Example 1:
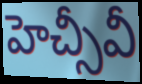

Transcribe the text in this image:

హెచ్సీవీ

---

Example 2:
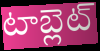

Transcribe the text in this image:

టాబ్లెట్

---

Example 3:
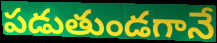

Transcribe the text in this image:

పడుతుండగానే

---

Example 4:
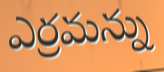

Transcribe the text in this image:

ఎర్రమన్ను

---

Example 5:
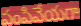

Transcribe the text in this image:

పంపివేయగా